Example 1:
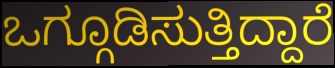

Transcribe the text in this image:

ಒಗ್ಗೂಡಿಸುತ್ತಿದ್ದಾರೆ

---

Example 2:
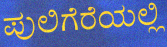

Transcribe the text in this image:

ಪುಲಿಗೆರೆಯಲ್ಲಿ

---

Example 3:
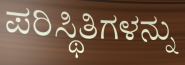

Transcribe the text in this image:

ಪರಿಸ್ಥಿತಿಗಳನ್ನು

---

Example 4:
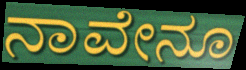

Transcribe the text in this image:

ನಾವೇನೂ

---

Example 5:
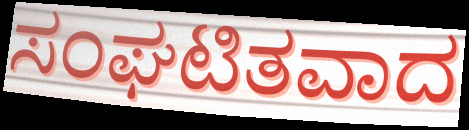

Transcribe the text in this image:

ಸಂಘಟಿತವಾದ